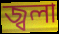
জ্বলা